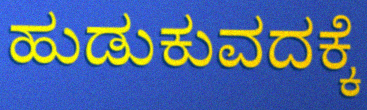
ಹುಡುಕುವದಕ್ಕೆ